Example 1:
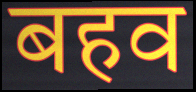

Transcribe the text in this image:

बहव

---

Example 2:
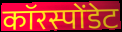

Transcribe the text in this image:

कॉरस्पोंडेट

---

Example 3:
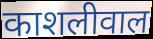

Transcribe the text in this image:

काशलीवाल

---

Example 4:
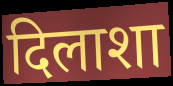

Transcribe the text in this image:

दिलाशा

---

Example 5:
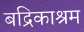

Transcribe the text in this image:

बद्रिकाश्रम